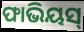
ଫାଭିୟସ୍